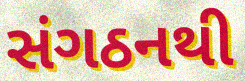
સંગઠનથી